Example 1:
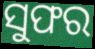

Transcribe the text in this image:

ସୁଫର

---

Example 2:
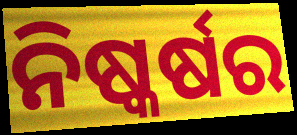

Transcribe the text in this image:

ନିଷ୍କର୍ଷର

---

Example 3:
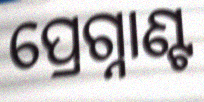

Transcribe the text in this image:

ପ୍ରେଗ୍ନାଣ୍ଟ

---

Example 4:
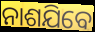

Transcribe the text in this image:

ନାଶଯିବେ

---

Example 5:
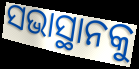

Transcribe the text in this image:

ସଭାସ୍ଥାନକୁ